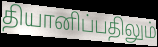
தியானிப்பதிலும்